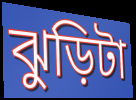
ঝুড়িটা